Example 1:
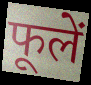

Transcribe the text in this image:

फूलें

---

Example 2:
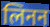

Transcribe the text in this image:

लिनन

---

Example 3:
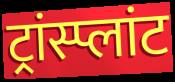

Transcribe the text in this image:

ट्रांस्प्लांट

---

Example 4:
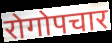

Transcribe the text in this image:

रोगोपचार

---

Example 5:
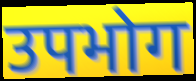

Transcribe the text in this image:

उपभोग